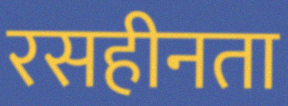
रसहीनता